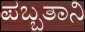
ಪಬ್ಬತಾನಿ